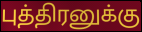
புத்திரனுக்கு